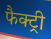
फैक्ट्री